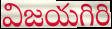
విజయగిరి